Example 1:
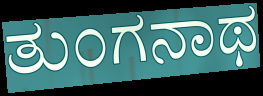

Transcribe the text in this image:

ತುಂಗನಾಥ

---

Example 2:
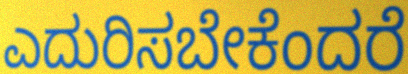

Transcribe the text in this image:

ಎದುರಿಸಬೇಕೆಂದರೆ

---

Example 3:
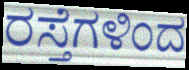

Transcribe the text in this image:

ರಸ್ತೆಗಳಿಂದ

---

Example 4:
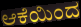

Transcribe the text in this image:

ಆಕೆಯಿಂದ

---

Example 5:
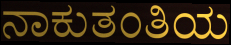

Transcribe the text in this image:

ನಾಕುತಂತಿಯ